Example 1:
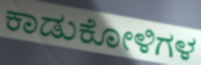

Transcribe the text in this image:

ಕಾಡುಕೋಳಿಗಳ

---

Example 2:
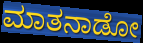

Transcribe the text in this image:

ಮಾತನಾಡೋ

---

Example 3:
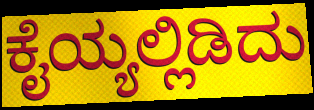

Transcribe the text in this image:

ಕೈಯ್ಯಲ್ಲಿಡಿದು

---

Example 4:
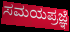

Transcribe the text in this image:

ಸಮಯಪ್ರಜ್ಞೆ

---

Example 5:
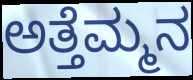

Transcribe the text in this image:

ಅತ್ತೆಮ್ಮನ